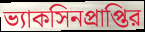
ভ্যাকসিনপ্রাপ্তির